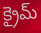
క్రైమ్